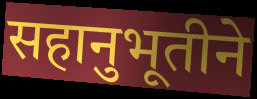
सहानुभूतीने